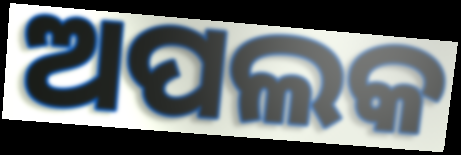
ଅପଲକ